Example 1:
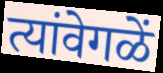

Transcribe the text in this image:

त्यांवेगळें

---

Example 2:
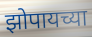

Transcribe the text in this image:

झोपायच्या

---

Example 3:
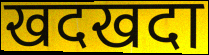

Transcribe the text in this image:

खदखदा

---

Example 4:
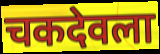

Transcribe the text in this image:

चकदेवला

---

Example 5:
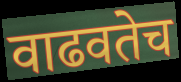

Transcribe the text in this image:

वाढवतेच